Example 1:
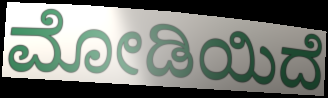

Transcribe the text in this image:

ಮೋಡಿಯಿದೆ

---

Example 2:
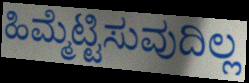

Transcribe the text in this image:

ಹಿಮ್ಮೆಟ್ಟಿಸುವುದಿಲ್ಲ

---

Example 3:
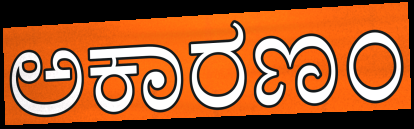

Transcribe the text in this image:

ಅಕಾರಣಂ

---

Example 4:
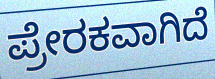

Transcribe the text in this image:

ಪ್ರೇರಕವಾಗಿದೆ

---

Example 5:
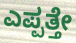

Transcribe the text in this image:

ಎಪ್ಪತ್ತೇ